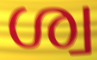
ശ്വ